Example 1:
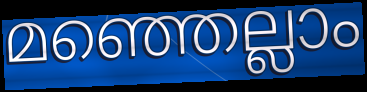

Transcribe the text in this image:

മഞ്ഞെല്ലാം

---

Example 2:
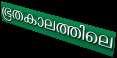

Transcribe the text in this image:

ഭൂതകാലത്തിലെ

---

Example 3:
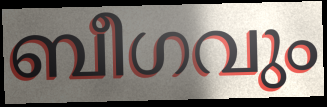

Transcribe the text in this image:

ബീഗവും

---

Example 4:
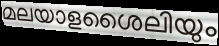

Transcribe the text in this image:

മലയാളശൈലിയും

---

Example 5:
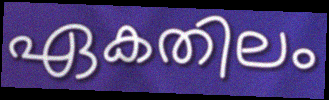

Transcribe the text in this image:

ഏകതിലം